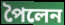
পৈলেন